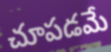
చూపడమే